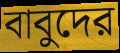
বাবুদের